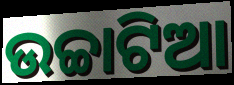
ଉଚ୍ଚାଟିଆ